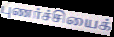
புணர்ச்சியைக்